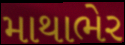
માથાભેર